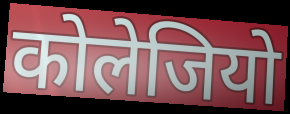
कोलेजियो